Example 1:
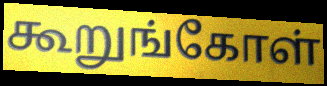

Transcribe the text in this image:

கூறுங்கோள்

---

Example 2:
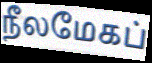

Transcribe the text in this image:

நீலமேகப்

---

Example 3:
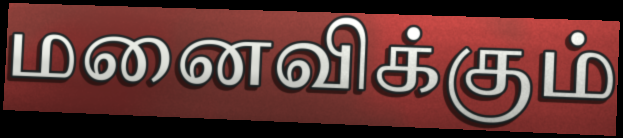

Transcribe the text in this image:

மனைவிக்கும்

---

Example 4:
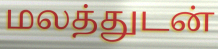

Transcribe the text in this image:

மலத்துடன்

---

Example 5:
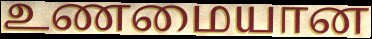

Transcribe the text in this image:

உணமையான